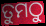
ତୁମଠୁ